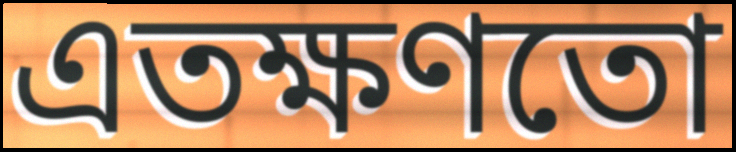
এতক্ষণতো